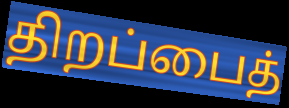
திறப்பைத்